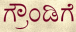
ಗ್ರೌಂಡಿಗೆ